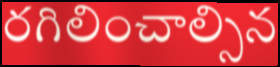
రగిలించాల్సిన